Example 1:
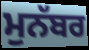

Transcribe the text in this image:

ਮੁਨੱਬਰ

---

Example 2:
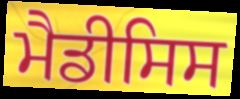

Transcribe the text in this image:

ਮੈਡੀਸਿਸ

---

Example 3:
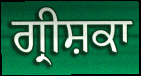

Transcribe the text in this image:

ਗ੍ਰੀਸ਼ਕਾ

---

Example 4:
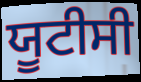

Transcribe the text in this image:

ਯੂਟੀਸੀ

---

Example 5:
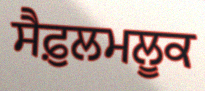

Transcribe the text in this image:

ਸੈਫ਼ੁਲਮਲੂਕ